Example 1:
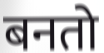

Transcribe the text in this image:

बनतो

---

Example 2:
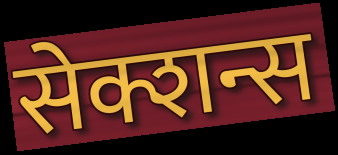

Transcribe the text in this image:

सेक्शन्स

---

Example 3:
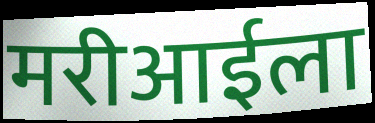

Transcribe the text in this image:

मरीआईला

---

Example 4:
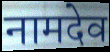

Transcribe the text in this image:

नामदेव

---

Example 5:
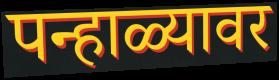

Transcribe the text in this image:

पन्हाळ्यावर